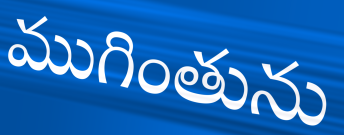
ముగింతును